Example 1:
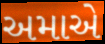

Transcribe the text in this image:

અમાએ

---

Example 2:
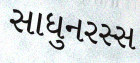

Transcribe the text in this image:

સાધુનરસ્સ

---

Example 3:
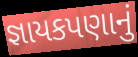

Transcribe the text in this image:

જ્ઞાયકપણાનું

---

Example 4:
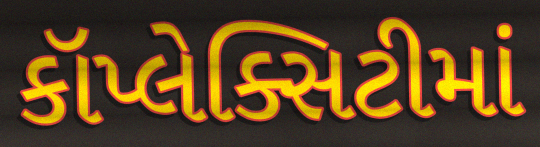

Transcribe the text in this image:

કૉપ્લેક્સિટીમાં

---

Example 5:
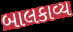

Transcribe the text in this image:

બાલકાવ્ય